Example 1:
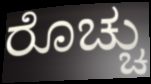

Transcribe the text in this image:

ರೊಚ್ಚು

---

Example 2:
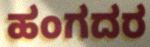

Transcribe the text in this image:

ಹಂಗದರ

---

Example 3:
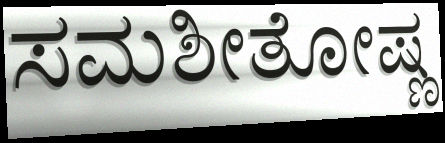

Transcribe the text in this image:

ಸಮಶೀತೋಷ್ಣ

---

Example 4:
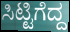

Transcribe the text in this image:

ಸಿಟ್ಟಿಗೆದ್ದ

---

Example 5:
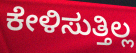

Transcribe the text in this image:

ಕೇಳಿಸುತ್ತಿಲ್ಲ